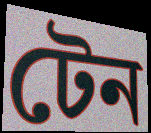
টেন